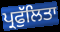
ਪ੍ਰਫੁੱਲਿਤਾ